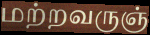
மற்றவருஞ்